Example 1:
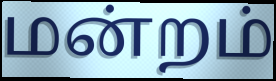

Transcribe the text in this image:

மன்றம்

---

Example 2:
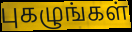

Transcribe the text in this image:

புகழுங்கள்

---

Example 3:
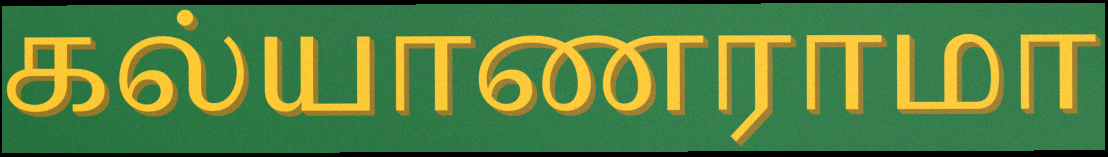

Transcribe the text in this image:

கல்யாணராமா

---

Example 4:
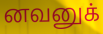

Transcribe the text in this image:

னவனுக்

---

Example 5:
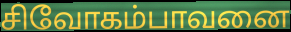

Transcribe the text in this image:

சிவோகம்பாவனை